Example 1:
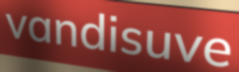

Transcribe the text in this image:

vandisuve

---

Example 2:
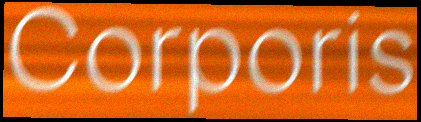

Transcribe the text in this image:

Corporis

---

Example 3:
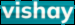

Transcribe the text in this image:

vishay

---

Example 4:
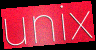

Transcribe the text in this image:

unix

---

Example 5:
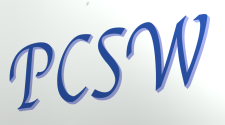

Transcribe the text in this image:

PCSW